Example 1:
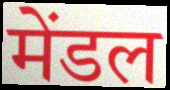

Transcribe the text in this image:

मेंडल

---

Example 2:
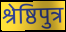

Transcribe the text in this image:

श्रेष्ठिपुत्र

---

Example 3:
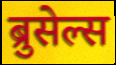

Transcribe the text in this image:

ब्रुसेल्स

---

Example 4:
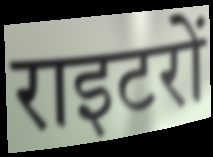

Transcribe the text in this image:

राइटरों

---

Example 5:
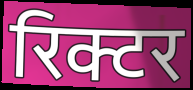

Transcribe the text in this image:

रिक्टर